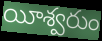
యీశ్వరుం